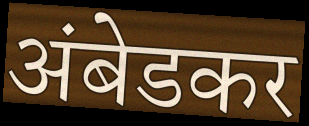
अंबेडकर